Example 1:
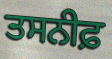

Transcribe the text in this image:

ਤਸਨੀਫ਼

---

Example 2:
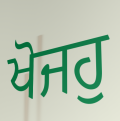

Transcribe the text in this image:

ਖੋਜਹੁ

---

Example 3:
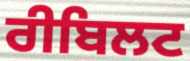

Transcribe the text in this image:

ਰੀਬਿਲਟ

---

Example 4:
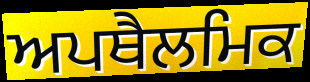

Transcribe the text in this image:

ਅਪਥੈਲਮਿਕ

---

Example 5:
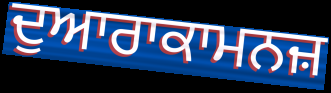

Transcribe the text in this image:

ਦੁਆਰਾਕਾਮਨਜ਼